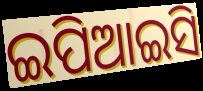
ଇପିଆଇସି